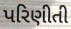
પરિણીતી